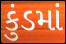
કુંડમાં